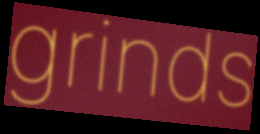
grinds